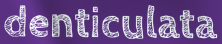
denticulata